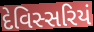
દેવિસ્સરિયં